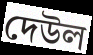
দেউল